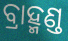
ବ୍ରାହ୍ମଣ୍ଡ